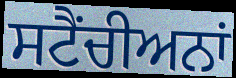
ਸਟੈਂਚੀਅਨਾਂ